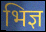
भिज्ञ